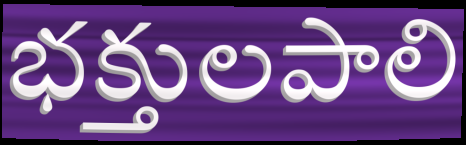
భక్తులపాలి